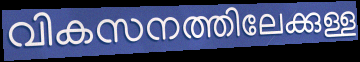
വികസനത്തിലേക്കുള്ള